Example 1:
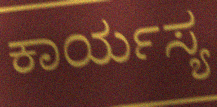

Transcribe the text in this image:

ಕಾರ್ಯಸ್ಯ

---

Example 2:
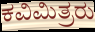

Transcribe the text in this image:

ಕವಿಮಿತ್ರರು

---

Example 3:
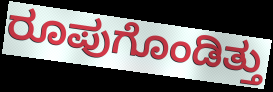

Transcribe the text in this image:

ರೂಪುಗೊಂಡಿತ್ತು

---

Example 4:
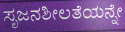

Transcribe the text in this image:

ಸೃಜನಶೀಲತೆಯನ್ನೇ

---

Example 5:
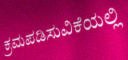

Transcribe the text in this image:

ಕ್ರಮಪಡಿಸುವಿಕೆಯಲ್ಲಿ